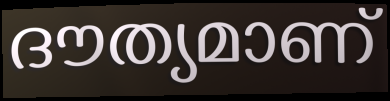
ദൗത്യമാണ്